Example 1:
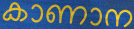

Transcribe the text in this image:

കാണാന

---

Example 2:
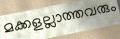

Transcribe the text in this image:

മക്കളല്ലാത്തവരും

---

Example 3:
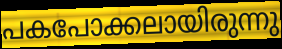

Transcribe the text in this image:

പകപോക്കലായിരുന്നു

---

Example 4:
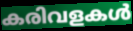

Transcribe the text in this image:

കരിവളകൾ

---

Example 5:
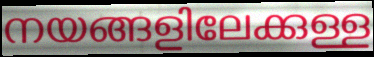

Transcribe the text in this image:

നയങ്ങളിലേക്കുള്ള